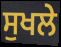
ਸੁਖਲੇ